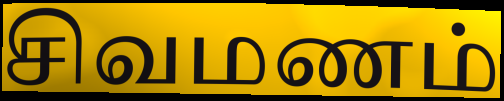
சிவமணம்